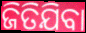
ଜିତିଯିବା